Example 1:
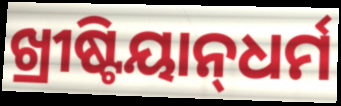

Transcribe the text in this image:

ଖ୍ରୀଷ୍ଟିୟାନ୍‌ଧର୍ମ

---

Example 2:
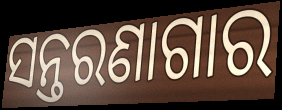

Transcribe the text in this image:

ସନ୍ତରଣାଗାର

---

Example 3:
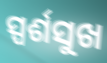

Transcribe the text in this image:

ସ୍ପର୍ଶସୁଖ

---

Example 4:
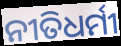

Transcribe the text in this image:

ନୀତିଧର୍ମୀ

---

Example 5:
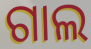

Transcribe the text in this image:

ଗାଲ